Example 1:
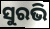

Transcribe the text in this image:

ସୁରଭି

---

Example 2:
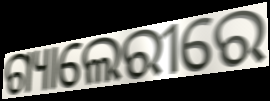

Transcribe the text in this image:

ଗ୍ୟାଲେରୀରେ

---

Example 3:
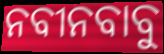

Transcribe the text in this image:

ନବୀନବାବୁ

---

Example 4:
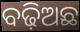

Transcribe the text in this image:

ବଢ଼ିଅଛ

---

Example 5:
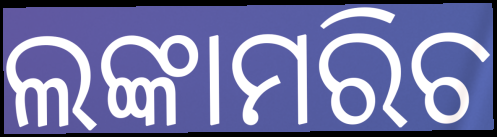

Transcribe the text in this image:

ଲଙ୍କାମରିଚ